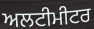
ਅਲਟੀਮੀਟਰ